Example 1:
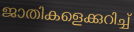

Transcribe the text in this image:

ജാതികളെക്കുറിച്ച്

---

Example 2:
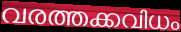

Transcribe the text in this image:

വരത്തക്കവിധം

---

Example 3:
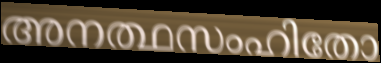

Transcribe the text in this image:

അനത്ഥസംഹിതോ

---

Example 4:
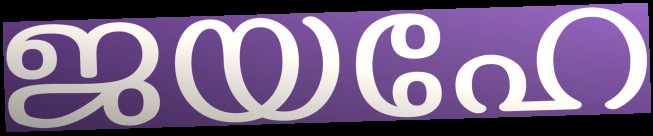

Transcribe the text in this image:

ജയഹേ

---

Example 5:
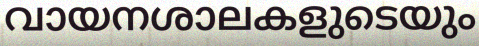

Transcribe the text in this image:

വായനശാലകളുടെയും